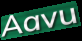
Aavu